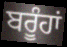
ਬਰੂੰਹਾਂ